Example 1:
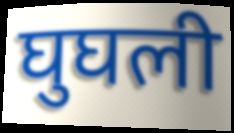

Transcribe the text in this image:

घुघली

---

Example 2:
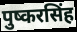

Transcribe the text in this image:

पुष्करसिंह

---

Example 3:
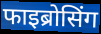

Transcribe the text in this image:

फाइब्रोसिंग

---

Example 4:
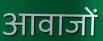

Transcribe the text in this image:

आवाजों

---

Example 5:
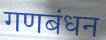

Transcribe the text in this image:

गणबंधन